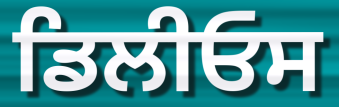
ਡਿਲੀਓਸ